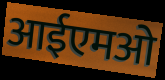
आईएमओ